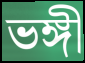
ভঙ্গী